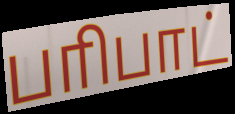
பரிபாட்